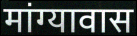
मांग्यावास